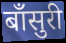
बाँसुरी